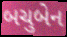
બચુબેન